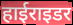
हाईराइडर